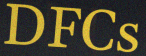
DFCs